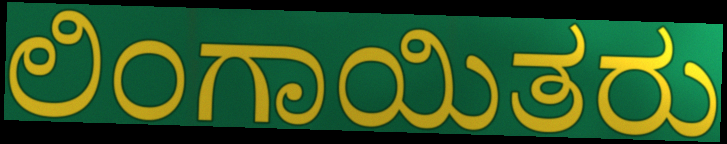
ಲಿಂಗಾಯಿತರು